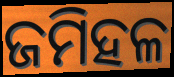
ଜମିହଳ